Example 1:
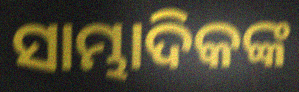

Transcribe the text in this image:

ସାମ୍ଭାଦିକଙ୍କ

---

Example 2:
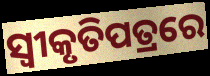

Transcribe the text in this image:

ସ୍ୱୀକୃତିପତ୍ରରେ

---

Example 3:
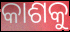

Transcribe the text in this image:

କାଶକୁ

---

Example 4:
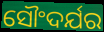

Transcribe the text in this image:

ସୌଂଦର୍ଯର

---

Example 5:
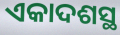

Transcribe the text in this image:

ଏକାଦଶସ୍ଥ